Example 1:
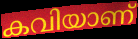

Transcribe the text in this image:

കവിയാണ്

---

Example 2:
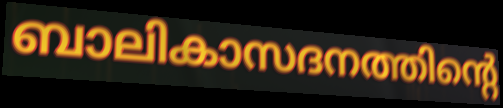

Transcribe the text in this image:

ബാലികാസദനത്തിന്റെ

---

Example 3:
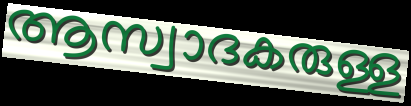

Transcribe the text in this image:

ആസ്വാദകരുള്ള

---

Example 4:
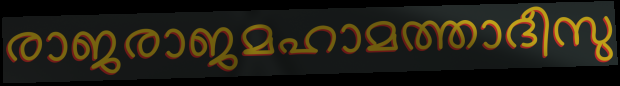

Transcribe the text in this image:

രാജരാജമഹാമത്താദീസു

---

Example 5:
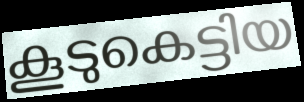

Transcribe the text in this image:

കൂടുകെട്ടിയ